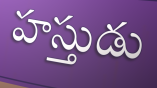
హస్తుడు